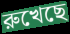
রুখেছে